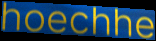
hoechhe